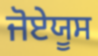
ਜੋਏਯੂਸ